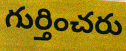
గుర్తించరు